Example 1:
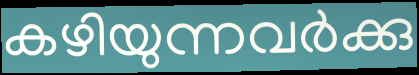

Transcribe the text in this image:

കഴിയുന്നവർക്കു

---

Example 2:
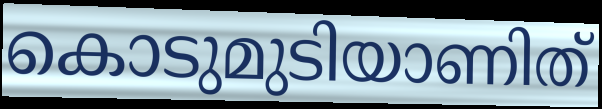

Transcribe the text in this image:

കൊടുമുടിയാണിത്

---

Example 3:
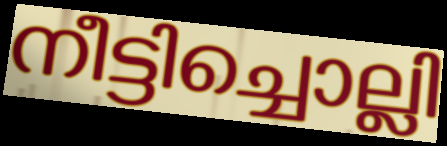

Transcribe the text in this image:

നീട്ടിച്ചൊല്ലി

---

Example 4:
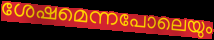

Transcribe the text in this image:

ശേഷമെന്നപോലെയും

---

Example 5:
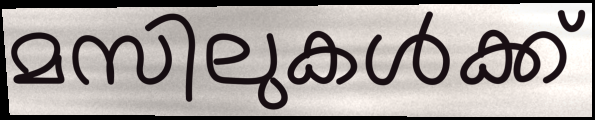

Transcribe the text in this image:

മസിലുകൾക്ക്